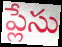
ప్లేసు